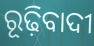
ରୂଢ଼ିବାଦୀ